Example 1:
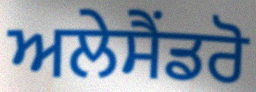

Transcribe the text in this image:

ਅਲੇਸੈਂਡਰੋ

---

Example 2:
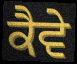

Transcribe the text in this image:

ਕੈਵੇ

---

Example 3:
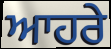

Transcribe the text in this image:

ਆਹਰੇ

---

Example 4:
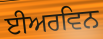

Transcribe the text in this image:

ਈਅਰਵਿਨ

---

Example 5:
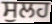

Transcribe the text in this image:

ਸੁਲਹ